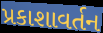
પ્રકાશાવર્તન